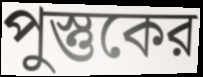
পুস্তুকের